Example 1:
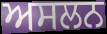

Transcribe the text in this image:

ਅਸਲਨ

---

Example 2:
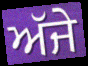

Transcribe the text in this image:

ਅੱਜੇ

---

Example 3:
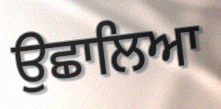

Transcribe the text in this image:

ਉਛਾਲਿਆ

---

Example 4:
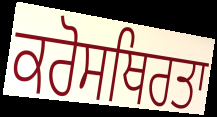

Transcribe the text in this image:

ਕਰੋਸਥਿਰਤਾ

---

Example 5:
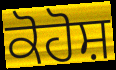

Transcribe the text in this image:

ਕੋਹੋਸ਼